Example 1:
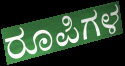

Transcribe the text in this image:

ರೂಪಿಗಳ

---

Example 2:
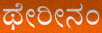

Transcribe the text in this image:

ಥೇರೀನಂ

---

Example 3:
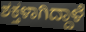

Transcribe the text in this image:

ಶಕ್ತಳಾಗಿದ್ದಾಳೆ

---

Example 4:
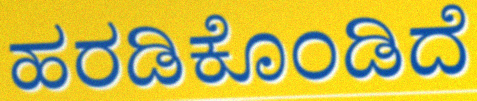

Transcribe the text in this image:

ಹರಡಿಕೊಂಡಿದೆ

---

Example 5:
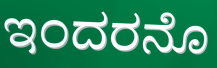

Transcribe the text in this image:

ಇಂದರನೊ